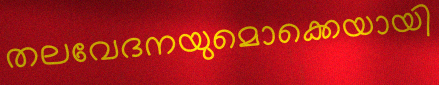
തലവേദനയുമൊക്കെയായി